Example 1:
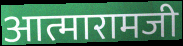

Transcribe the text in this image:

आत्मारामजी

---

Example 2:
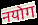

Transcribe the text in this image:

नयोग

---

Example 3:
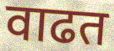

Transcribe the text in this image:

वाढत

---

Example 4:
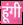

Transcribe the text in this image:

हूंगी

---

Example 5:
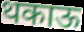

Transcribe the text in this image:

थकाऊ